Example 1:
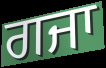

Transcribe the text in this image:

ਗਜਾ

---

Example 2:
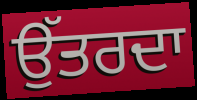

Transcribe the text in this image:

ਉੱਤਰਦਾ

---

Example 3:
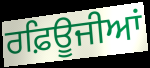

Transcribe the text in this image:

ਰਫ਼ਿਊਜੀਆਂ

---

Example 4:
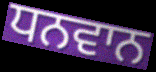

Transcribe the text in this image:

ਧਨਵਾਨ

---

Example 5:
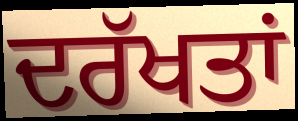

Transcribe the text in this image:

ਦਰੱਖਤਾਂ